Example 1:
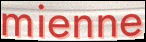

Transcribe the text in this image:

mienne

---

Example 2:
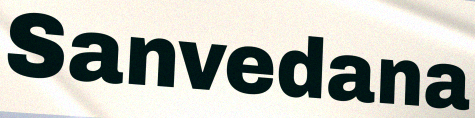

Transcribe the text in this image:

Sanvedana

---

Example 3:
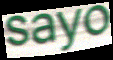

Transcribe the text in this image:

sayo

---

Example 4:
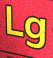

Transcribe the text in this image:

Lg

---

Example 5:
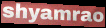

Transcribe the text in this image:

shyamrao